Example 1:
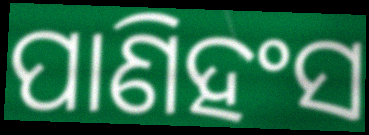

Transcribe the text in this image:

ପାଣିହଂସ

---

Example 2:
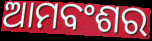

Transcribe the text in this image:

ଆମବଂଶର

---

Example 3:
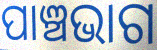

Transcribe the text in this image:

ପାଞ୍ଚଭାଗ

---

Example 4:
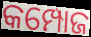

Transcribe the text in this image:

କମ୍ପୋଜ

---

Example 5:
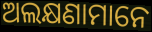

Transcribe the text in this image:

ଅଲକ୍ଷଣାମାନେ